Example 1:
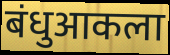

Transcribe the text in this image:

बंधुआकला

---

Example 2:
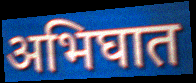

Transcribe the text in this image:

अभिघात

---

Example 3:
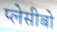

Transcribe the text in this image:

प्लेसीबो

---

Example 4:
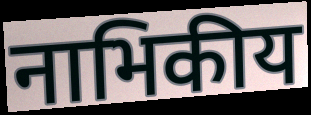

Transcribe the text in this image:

नाभिकीय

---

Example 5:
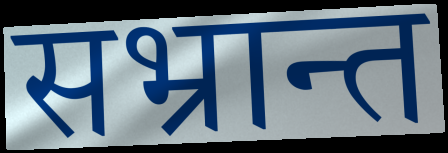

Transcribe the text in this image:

सभ्रान्त